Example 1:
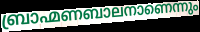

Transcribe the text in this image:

ബ്രാഹ്മണബാലനാണെന്നും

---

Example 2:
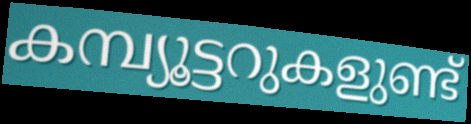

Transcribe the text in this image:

കമ്പ്യൂട്ടറുകളുണ്ട്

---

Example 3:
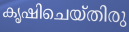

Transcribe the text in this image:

കൃഷിചെയ്തിരു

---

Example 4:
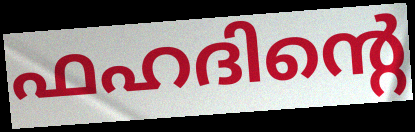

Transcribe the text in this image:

ഫഹദിന്റെ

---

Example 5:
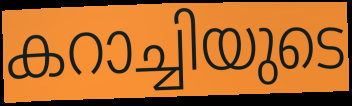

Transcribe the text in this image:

കറാച്ചിയുടെ